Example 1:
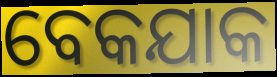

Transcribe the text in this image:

ବେକଯାକ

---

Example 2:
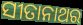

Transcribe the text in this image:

ସୀତାନାଥର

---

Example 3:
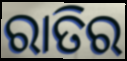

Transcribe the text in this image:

ରାତିର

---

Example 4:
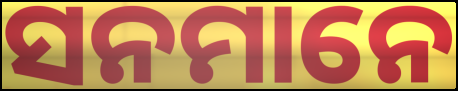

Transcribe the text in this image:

ସନମାନେ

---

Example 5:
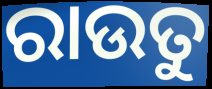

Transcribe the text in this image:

ରାଉତୁ